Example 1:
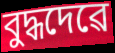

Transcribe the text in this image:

বুদ্ধদেৱে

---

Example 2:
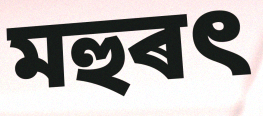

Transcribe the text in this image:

মহুৰৎ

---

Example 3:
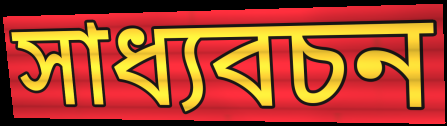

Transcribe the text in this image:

সাধ্যবচন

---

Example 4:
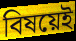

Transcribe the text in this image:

বিষয়েই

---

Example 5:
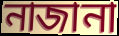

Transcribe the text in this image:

নাজানা